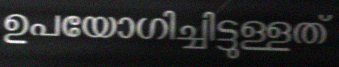
ഉപയോഗിച്ചിട്ടുള്ളത്